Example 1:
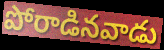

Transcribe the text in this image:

పోరాడినవాడు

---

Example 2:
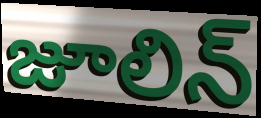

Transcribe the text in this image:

జూలిన్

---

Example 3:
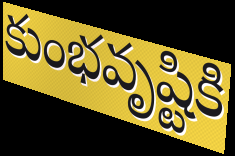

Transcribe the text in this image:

కుంభవృష్టికి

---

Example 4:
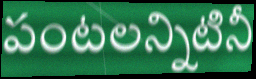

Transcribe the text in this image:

పంటలన్నిటినీ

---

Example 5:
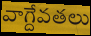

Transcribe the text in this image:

వాగ్దేవతలు